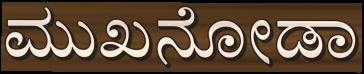
ಮುಖನೋಡಾ